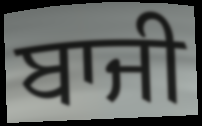
ਬਾਜੀ